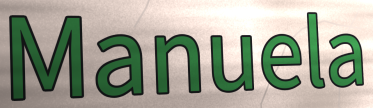
Manuela